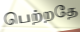
பெற்றதே